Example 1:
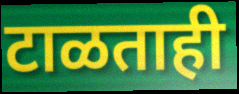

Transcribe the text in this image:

टाळताही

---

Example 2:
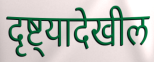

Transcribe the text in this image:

दृष्ट्यादेखील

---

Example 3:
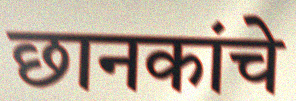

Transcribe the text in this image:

छानकांचे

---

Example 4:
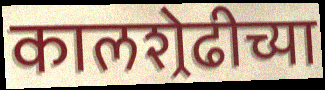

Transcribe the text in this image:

कालश्रेढीच्या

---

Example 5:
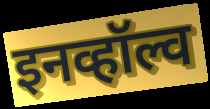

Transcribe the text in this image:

इनव्हॉल्व